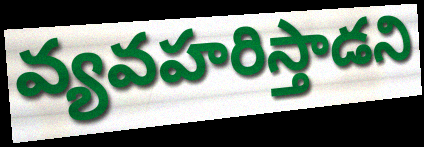
వ్యవహరిస్తాడని